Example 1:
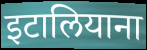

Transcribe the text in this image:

इटालियाना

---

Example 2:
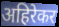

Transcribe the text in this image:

अहिरेकर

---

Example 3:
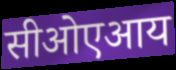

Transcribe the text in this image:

सीओएआय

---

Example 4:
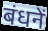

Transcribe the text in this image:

बंधनें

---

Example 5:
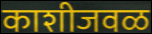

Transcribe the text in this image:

काशीजवळ